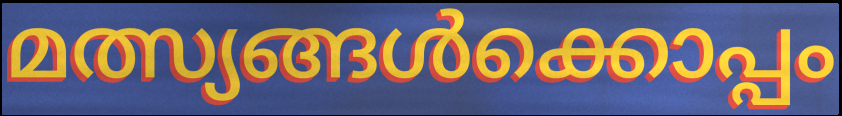
മത്സ്യങ്ങൾക്കൊപ്പം